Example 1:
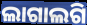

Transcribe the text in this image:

ଲାଗାଲଗି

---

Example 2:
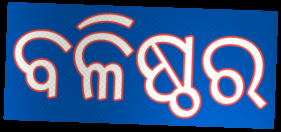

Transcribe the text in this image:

ବଳିଷ୍ଠର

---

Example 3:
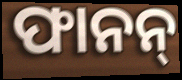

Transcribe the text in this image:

ଫାନନ୍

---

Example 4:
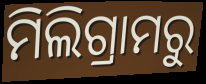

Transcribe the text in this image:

ମିଲିଗ୍ରାମରୁ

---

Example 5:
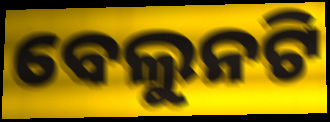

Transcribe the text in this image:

ବେଲୁନଟି